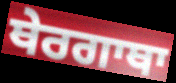
ਥੇਰਗਾਥਾ